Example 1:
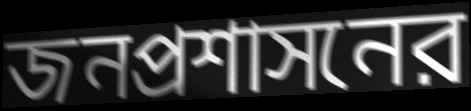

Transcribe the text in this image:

জনপ্রশাসনের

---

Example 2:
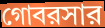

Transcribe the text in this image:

গোবরসার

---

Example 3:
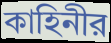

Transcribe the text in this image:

কাহিনীর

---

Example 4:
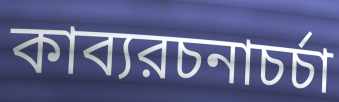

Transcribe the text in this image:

কাব্যরচনাচর্চা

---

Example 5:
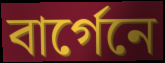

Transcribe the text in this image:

বার্গেনে